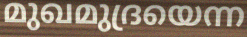
മുഖമുദ്രയെന്ന